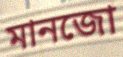
মানজো